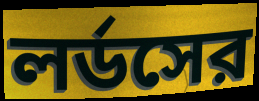
লর্ডসের